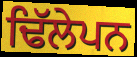
ਢਿੱਲੇਪਨ